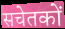
सचेतकों